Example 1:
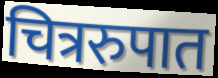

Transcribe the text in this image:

चित्ररुपात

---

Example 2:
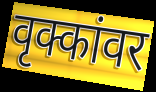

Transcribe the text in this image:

वृक्कांवर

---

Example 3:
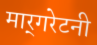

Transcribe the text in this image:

मार्गरेटनी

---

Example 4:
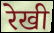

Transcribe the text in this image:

रेखी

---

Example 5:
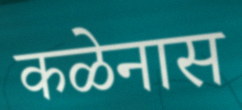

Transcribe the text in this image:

कळेनास